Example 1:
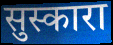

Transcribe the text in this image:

सुस्कारा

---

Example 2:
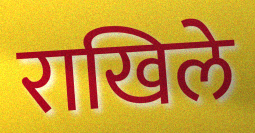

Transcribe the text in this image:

राखिले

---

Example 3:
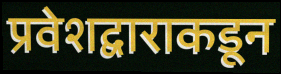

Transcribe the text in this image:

प्रवेशद्वाराकडून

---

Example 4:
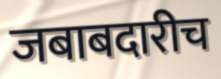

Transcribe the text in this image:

जबाबदारीच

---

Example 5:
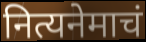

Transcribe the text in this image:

नित्यनेमाचं